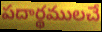
పదార్థములచే